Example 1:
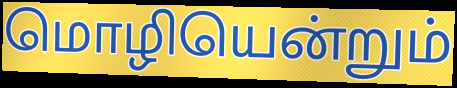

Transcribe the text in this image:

மொழியென்றும்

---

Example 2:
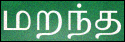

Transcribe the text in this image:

மறந்த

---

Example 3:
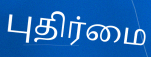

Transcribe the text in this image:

புதிர்மை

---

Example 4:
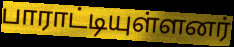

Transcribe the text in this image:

பாராட்டியுள்ளனர்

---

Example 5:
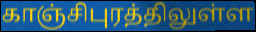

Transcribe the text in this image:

காஞ்சிபுரத்திலுள்ள